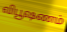
விபூஷணம்